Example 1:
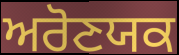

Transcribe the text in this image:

ਅਰੋਣਯਕ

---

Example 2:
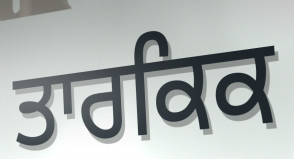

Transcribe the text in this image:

ਤਾਰਕਿਕ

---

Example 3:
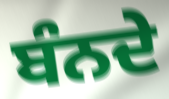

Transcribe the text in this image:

ਬੰਨਦੇ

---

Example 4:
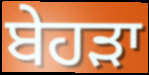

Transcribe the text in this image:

ਬੇਹੜਾ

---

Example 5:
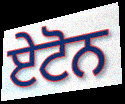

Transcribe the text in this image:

ਏਟੋਨ